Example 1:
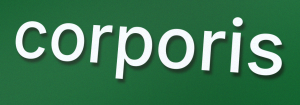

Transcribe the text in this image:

corporis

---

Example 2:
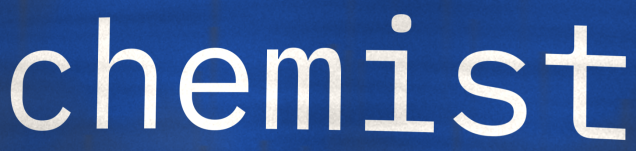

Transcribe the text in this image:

chemist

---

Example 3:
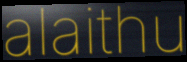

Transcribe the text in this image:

alaithu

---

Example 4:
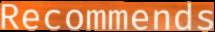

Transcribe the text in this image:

Recommends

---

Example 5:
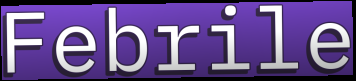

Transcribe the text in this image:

Febrile